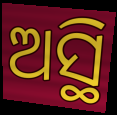
ଅସ୍ଥି